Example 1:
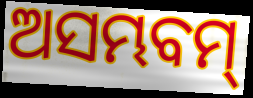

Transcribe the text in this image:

ଅସମ୍ଭବମ୍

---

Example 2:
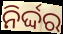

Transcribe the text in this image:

ନିର୍ଦ୍ଦର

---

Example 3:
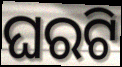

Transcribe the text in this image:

ଘରଟି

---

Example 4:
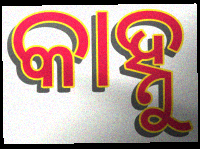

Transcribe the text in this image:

କାହ୍ନୁ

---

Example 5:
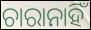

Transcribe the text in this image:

ଚାରାନାହିଁ